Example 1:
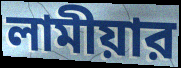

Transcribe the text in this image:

লামীয়ার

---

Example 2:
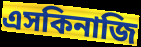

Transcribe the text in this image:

এসকিনাজি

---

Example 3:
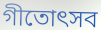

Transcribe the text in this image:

গীতোৎসব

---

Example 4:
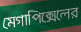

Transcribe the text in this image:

মেগাপিক্সেলের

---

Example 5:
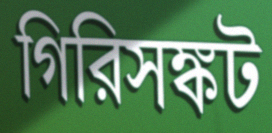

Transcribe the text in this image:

গিরিসঙ্কট